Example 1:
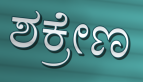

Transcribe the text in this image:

ಶಕ್ರೇಣ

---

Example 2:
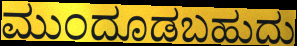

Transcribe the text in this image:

ಮುಂದೂಡಬಹುದು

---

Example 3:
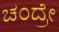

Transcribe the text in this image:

ಚಂದ್ರೇ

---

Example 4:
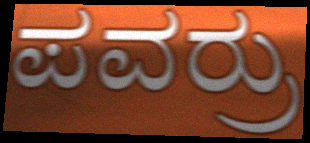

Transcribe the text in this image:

ಪವರ್ರು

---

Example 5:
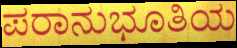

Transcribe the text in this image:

ಪರಾನುಭೂತಿಯ